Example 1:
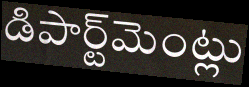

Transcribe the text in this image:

డిపార్ట్‌మెంట్లు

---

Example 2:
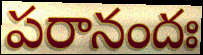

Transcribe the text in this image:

పరానందః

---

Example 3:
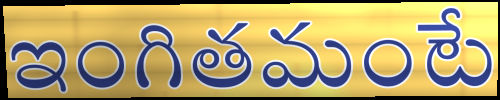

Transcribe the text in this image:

ఇంగితమంటే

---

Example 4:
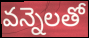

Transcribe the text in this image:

వన్నెలతో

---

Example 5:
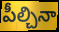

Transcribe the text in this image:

పీల్చినా